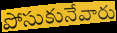
పోసుకునేవారు